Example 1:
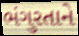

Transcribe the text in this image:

ભંગુરતાને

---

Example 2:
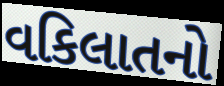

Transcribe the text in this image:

વકિલાતનો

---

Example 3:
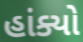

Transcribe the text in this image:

હાંક્યો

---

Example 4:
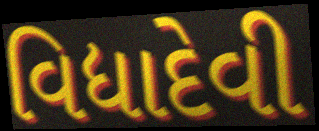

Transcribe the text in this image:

વિદ્યાદેવી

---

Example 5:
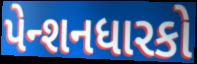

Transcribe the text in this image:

પેન્શનધારકો